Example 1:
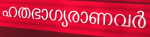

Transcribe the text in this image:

ഹതഭാഗ്യരാണവർ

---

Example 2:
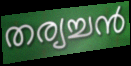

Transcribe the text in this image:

തര്യച്ചൻ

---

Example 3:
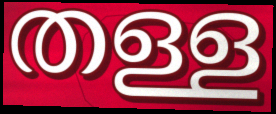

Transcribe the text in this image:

തള്ള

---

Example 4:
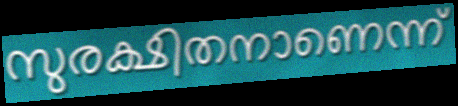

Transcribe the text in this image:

സുരക്ഷിതനാണെന്ന്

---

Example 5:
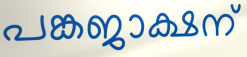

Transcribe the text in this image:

പങ്കജാക്ഷന്